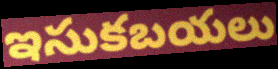
ఇసుకబయలు